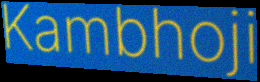
Kambhoji